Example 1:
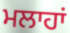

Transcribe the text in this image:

ਮਲਾਹਾਂ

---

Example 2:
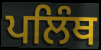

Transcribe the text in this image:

ਪਲਿੰਥ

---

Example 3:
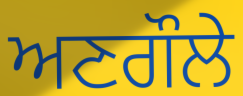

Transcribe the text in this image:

ਅਣਗੌਲੇ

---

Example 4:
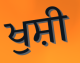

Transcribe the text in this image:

ਖੁਸ਼ੀ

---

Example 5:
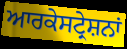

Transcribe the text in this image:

ਆਰਕੇਸਟ੍ਰੇਸ਼ਨਾਂ